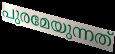
പുരമേയുന്നത്